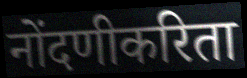
नोंदणीकरिता